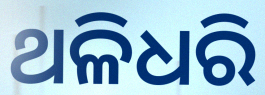
ଥଳିଧରି